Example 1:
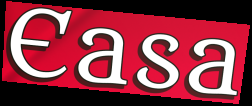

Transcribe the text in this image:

Easa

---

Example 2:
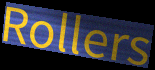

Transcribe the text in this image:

Rollers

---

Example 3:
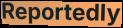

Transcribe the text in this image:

Reportedly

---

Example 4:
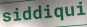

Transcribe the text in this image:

siddiqui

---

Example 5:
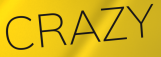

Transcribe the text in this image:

CRAZY